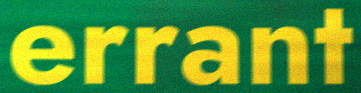
errant